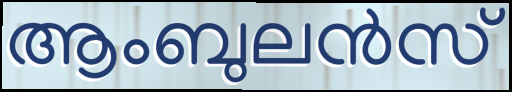
ആംബുലൻസ്